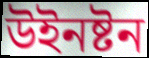
উইনষ্টন